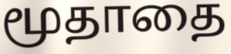
மூதாதை